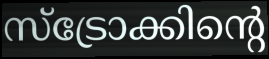
സ്ട്രോക്കിന്റെ